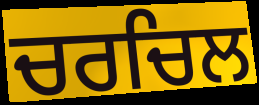
ਚਰਚਿਲ